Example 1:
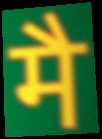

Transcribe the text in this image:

मै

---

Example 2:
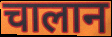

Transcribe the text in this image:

चालान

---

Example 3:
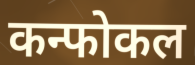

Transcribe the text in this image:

कन्फोकल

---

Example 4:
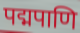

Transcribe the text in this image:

पद्मपाणि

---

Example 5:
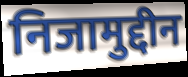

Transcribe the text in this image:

निजामुद्दीन